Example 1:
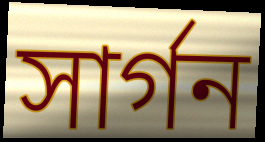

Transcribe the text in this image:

সার্গন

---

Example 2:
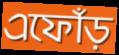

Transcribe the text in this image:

এফোঁড়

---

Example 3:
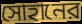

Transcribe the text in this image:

সোহানের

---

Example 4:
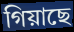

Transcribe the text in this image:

গিয়াছে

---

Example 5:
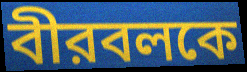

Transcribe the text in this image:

বীরবলকে